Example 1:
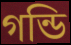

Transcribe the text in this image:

গন্ডি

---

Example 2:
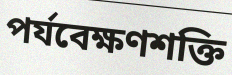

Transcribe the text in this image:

পর্যবেক্ষণশক্তি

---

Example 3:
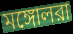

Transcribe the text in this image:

মঙ্গোলরা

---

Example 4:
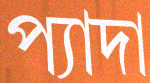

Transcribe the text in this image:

প্যাদা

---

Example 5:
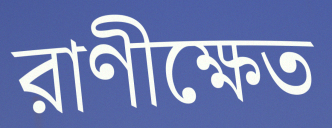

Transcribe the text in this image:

রাণীক্ষেত